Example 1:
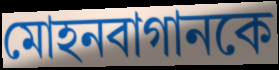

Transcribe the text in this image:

মোহনবাগানকে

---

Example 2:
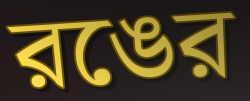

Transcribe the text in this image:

রঙের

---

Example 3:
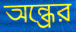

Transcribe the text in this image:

অন্ধ্রের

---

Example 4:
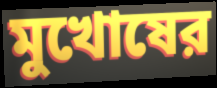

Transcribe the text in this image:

মুখোষের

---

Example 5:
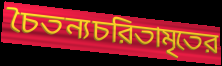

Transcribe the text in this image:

চৈতন্যচরিতামৃতের